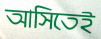
আসিতেই